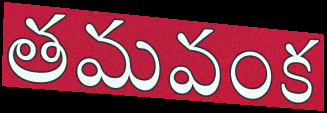
తమవంక